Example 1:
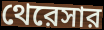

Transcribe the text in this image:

থেরেসার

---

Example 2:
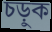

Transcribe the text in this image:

চড়ুক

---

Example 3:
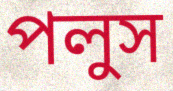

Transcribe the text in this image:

পলুস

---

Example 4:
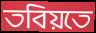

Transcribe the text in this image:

তবিয়তে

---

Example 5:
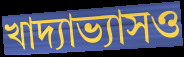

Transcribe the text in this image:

খাদ্যাভ্যাসও